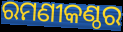
ରମଣୀକଣ୍ଠର